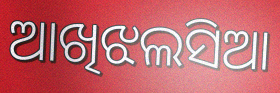
ଆଖିଝଲସିଆ